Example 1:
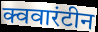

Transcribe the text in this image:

क्ववारंटीन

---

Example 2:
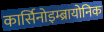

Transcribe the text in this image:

कार्सिनोइम्ब्रायोनिक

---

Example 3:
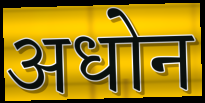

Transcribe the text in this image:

अधोन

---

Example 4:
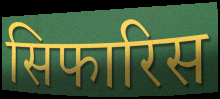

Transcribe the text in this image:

सिफारिस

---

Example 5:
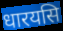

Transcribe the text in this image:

धारयसि